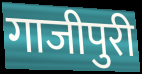
गाजीपुरी